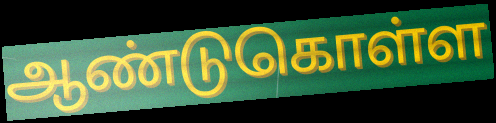
ஆண்டுகொள்ள